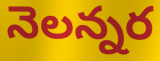
నెలన్నర